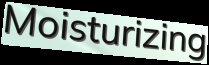
Moisturizing